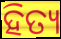
ହିତ୍ୟ